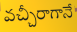
వచ్చీరాగానే